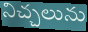
నిచ్చలును